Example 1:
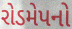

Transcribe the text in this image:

રોડમેપનો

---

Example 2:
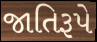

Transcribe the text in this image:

જાતિરૂપે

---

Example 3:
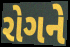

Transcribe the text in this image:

રોગને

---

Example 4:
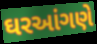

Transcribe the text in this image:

ઘરઆંગણે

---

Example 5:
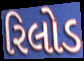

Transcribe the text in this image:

રિલોડ